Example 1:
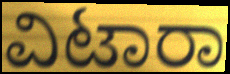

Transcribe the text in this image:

ವಿಟಾರಾ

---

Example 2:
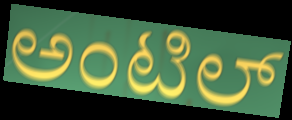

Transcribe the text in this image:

ಅಂಟಿಲ್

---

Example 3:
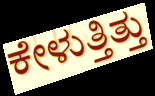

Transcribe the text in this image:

ಕೇಳುತ್ತಿತ್ತು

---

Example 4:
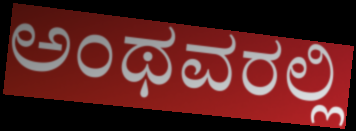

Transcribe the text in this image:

ಅಂಥವರಲ್ಲಿ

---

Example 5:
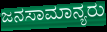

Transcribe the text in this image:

ಜನಸಾಮಾನ್ಯರು